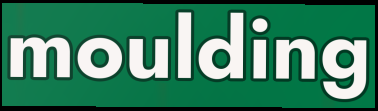
moulding